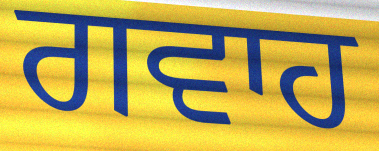
ਗਵਾਹ